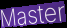
Master